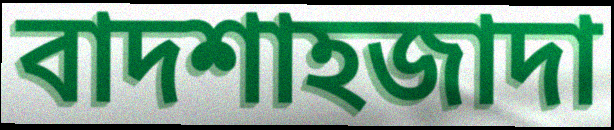
বাদশাহজাদা